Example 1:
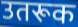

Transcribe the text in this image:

उतरूक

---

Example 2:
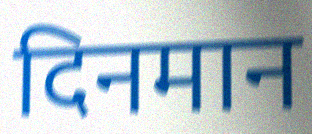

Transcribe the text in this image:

दिनमान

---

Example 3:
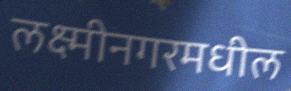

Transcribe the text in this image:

लक्ष्मीनगरमधील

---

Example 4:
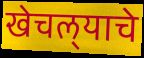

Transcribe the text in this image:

खेचल्याचे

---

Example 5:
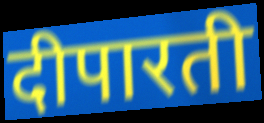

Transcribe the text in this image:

दीपारती